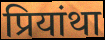
प्रियांथा